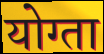
योग्ता